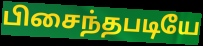
பிசைந்தபடியே